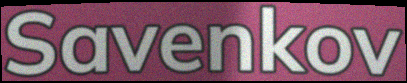
Savenkov